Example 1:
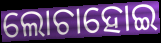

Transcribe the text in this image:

ଲୋଚାହୋଇ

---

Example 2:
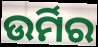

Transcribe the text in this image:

ଉର୍ମିର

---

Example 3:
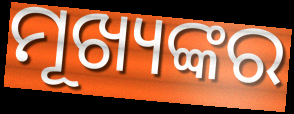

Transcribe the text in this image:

ମୂଖ୍ୟଙ୍କର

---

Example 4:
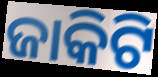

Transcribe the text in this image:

ଜାକିଟି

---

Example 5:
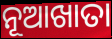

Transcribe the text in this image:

ନୂଆଖାତା